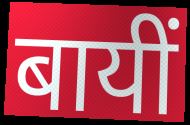
बायीं